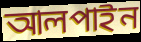
আলপাইন